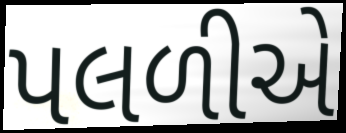
પલળીએ